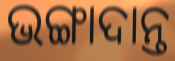
ଭଙ୍ଗାଦାନ୍ତ